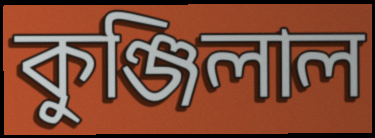
কুঞ্জিলাল